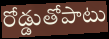
రోడ్డుతోపాటు